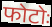
फोटोः